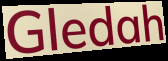
Gledah